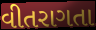
વીતરાગતા